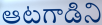
ఆటగాడిని